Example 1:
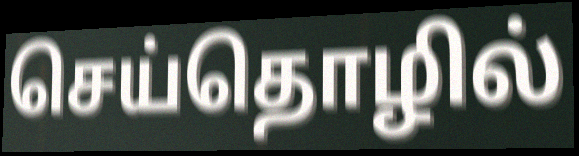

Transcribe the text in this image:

செய்தொழில்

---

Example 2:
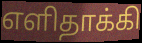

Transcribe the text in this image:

எளிதாக்கி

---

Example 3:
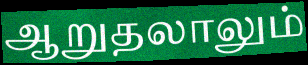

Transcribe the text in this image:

ஆறுதலாலும்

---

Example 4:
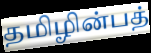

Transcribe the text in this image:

தமிழின்பத்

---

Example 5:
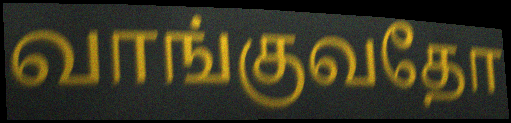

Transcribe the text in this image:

வாங்குவதோ